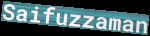
Saifuzzaman